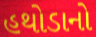
હથોડાનો